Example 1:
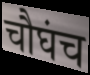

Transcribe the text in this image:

चौघंच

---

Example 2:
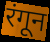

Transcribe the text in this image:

रंगून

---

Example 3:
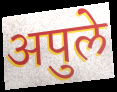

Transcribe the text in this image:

अपुले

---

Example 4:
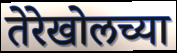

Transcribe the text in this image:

तेरेखोलच्या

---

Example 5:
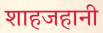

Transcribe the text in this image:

शाहजहानी